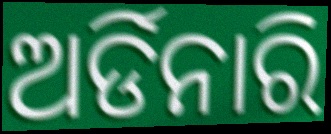
ଅର୍ଡିନାରି